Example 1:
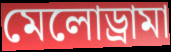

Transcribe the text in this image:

মেলোড্রামা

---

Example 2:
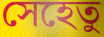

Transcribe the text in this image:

সেহেতু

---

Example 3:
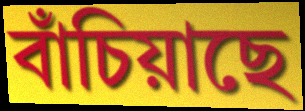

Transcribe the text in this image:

বাঁচিয়াছে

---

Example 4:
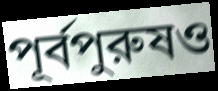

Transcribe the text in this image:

পূর্বপুরুষও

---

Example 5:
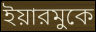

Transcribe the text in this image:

ইয়ারমুকে